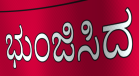
ಭುಂಜಿಸಿದ